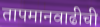
तापमानवाढीची